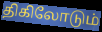
திகிலோடும்